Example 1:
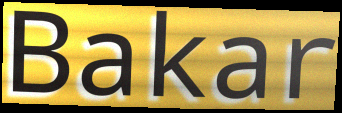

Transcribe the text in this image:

Bakar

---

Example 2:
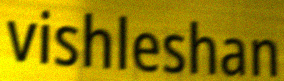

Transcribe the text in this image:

vishleshan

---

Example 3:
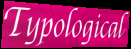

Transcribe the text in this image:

Typological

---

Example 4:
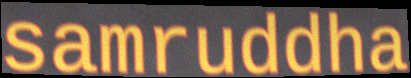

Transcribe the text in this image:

samruddha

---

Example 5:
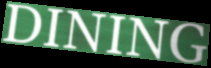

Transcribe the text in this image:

DINING